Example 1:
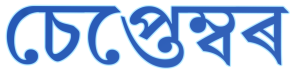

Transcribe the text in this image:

চেপ্তেম্বৰ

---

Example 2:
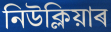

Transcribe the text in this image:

নিউক্লিয়াৰ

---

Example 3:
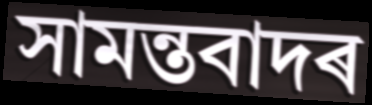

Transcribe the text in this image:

সামন্তবাদৰ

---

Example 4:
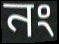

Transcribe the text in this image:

নং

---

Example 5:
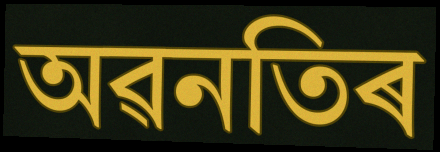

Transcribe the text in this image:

অৱনতিৰ